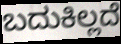
ಬದುಕಿಲ್ಲದೆ